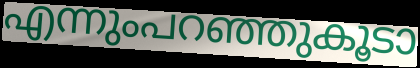
എന്നുംപറഞ്ഞുകൂടാ